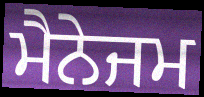
ਮੈਨੇਜਮ